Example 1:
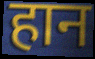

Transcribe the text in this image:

हान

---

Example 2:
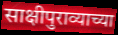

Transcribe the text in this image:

साक्षीपुराव्याच्या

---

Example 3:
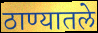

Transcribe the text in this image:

ठाण्यातले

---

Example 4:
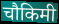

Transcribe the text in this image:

चौकिमी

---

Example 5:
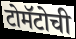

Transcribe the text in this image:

टोमॅटोची